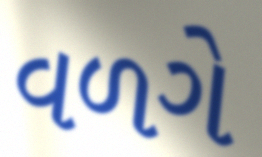
વળગે